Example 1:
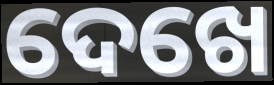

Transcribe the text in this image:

ଦେଖେ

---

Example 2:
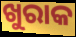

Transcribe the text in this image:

ଖୁରାକ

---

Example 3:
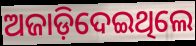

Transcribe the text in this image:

ଅଜାଡ଼ିଦେଇଥିଲେ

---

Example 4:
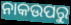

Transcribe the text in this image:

ନାକଉପରୁ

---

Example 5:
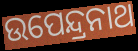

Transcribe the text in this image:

ଉପେନ୍ଦ୍ରନାଥ